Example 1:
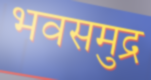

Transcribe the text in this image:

भवसमुद्र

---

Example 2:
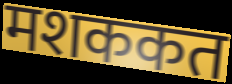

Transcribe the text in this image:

मशककत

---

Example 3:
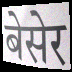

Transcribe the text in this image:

बेसेर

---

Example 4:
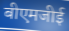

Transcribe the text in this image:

बीएमजीई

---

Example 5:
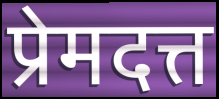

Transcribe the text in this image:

प्रेमदत्त